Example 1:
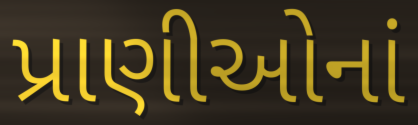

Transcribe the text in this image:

પ્રાણીઓનાં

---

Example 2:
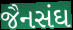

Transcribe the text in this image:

જૈનસંઘ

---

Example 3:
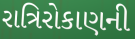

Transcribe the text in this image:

રાત્રિરોકાણની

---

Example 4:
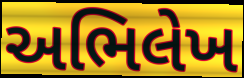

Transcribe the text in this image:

અભિલેખ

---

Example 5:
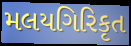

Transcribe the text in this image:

મલયગિરિકૃત